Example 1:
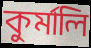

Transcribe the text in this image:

কুৰ্মালি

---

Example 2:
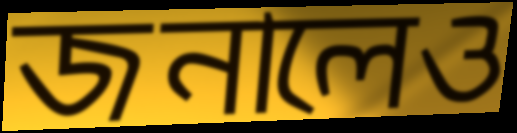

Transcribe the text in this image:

জনালেও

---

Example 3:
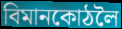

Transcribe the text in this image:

বিমানকোঠলৈ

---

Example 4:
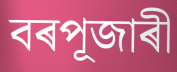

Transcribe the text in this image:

বৰপূজাৰী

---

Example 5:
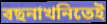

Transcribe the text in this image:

ৰছনাখনিতেই